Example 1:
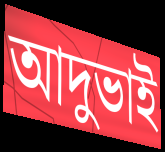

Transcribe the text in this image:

আদুভাই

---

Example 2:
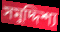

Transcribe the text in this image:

সমুদ্দিশ্য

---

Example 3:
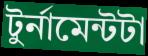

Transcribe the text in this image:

টুর্নামেন্টটা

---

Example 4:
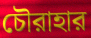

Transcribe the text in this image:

চৌরাহার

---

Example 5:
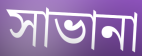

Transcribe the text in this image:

সাভানা